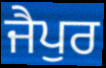
ਜੈਪੁਰ